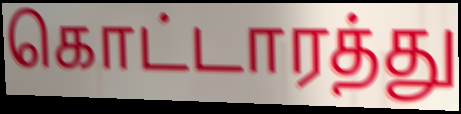
கொட்டாரத்து